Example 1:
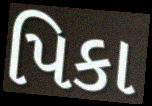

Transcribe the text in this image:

પિકા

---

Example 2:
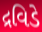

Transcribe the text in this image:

દ્રવિડે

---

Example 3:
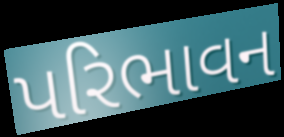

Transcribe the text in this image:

પરિભાવન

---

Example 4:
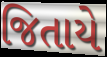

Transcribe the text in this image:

જિતાયે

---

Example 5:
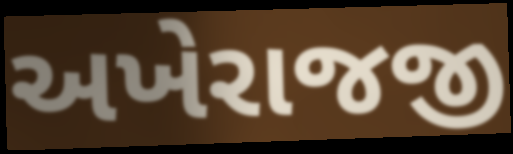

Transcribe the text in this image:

અખેરાજજી